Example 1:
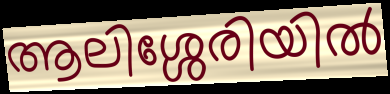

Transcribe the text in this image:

ആലിശ്ശേരിയിൽ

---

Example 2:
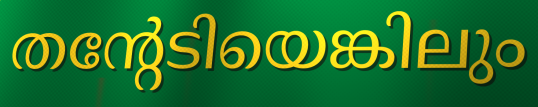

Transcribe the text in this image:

തന്റേടിയെങ്കിലും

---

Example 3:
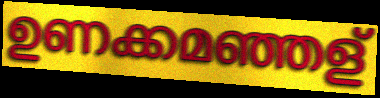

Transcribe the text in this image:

ഉണക്കമഞ്ഞള്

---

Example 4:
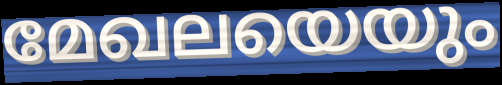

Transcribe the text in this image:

മേഖലയെയും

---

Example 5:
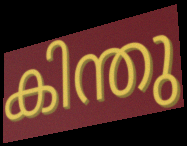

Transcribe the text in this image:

കിന്തു